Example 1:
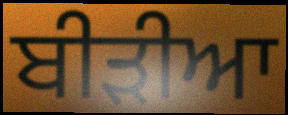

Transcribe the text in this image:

ਬੀੜੀਆ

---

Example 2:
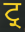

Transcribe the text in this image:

ਟ੍ਰ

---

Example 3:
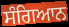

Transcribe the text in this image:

ਸੰਗਿਆਨ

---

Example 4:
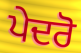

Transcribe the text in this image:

ਪੇਦਰੋ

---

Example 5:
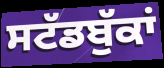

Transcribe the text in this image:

ਸਟੱਡਬੁੱਕਾਂ